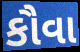
કૌવા